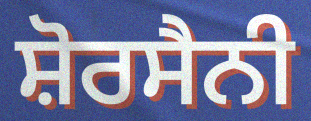
ਸ਼ੋਰਸੈਨੀ